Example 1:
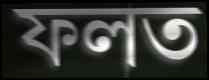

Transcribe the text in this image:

ফলত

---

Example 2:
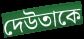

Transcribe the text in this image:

দেউতাকে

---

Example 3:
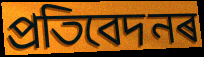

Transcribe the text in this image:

প্ৰতিবেদনৰ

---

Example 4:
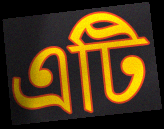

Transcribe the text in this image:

এটি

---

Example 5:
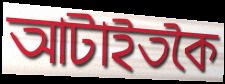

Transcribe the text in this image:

আটাইতকৈ